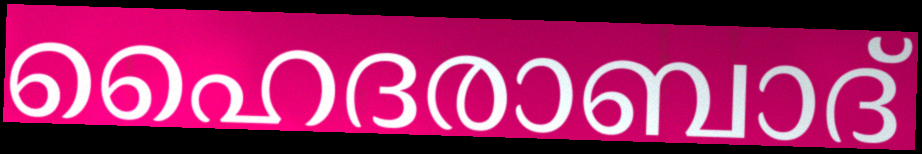
ഹൈദരാബാദ്